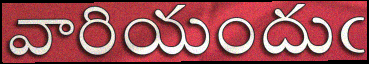
వారియందుఁ